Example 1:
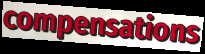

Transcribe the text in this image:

compensations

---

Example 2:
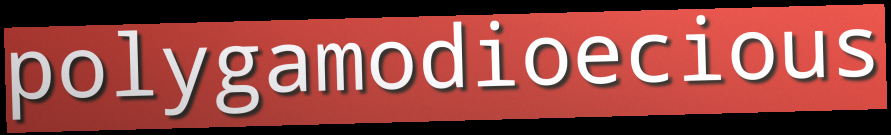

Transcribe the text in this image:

polygamodioecious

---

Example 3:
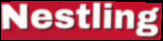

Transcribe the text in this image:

Nestling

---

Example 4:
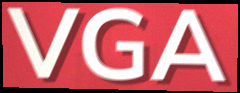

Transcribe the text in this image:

VGA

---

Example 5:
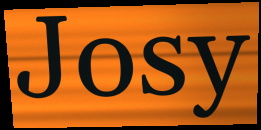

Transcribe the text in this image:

Josy